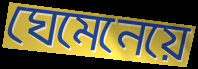
ঘেমেনেয়ে